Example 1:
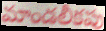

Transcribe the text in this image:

మాండలీకపు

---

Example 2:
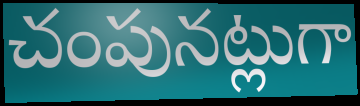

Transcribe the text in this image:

చంపునట్లుగా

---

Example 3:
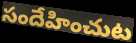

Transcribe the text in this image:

సందేహించుట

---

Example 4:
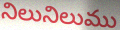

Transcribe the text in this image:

నిలునిలుము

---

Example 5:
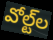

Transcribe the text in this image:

వోల్ట్‌ల